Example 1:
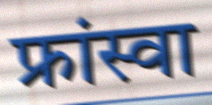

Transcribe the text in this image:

फ्रांस्वा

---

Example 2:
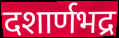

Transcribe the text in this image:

दशार्णभद्र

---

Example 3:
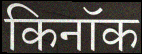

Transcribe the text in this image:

किनॉक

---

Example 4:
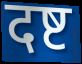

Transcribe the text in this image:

दष्ट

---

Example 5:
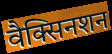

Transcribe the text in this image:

वैक्सिनशन